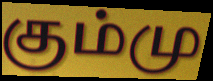
கும்மு